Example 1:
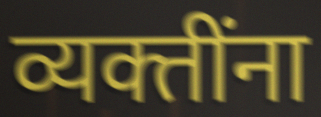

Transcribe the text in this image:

व्यक्‍तींना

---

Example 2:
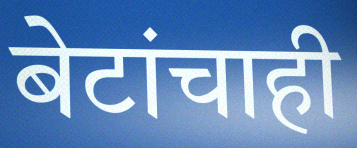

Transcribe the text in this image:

बेटांचाही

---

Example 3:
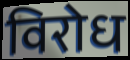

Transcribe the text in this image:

विरोध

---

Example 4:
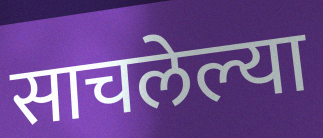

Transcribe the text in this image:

साचलेल्या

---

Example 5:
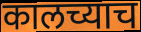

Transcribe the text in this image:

कालच्याच